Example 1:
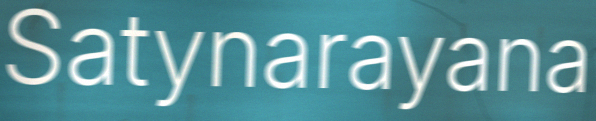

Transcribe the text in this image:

Satynarayana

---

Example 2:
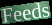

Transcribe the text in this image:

Feeds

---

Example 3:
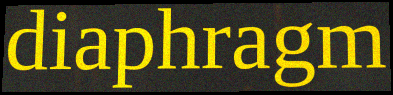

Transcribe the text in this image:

diaphragm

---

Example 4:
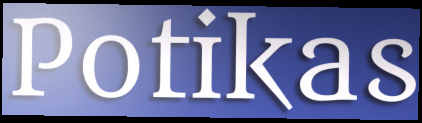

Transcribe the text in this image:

Potikas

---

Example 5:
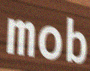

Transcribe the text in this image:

mob